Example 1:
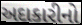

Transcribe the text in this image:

અદાકારીનો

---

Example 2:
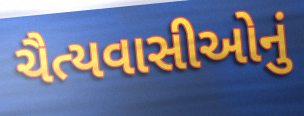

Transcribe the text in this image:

ચૈત્યવાસીઓનું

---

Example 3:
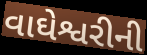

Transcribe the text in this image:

વાઘેશ્વરીની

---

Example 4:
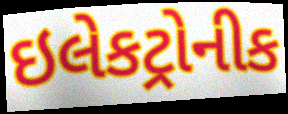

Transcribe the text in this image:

ઇલેકટ્રોનીક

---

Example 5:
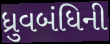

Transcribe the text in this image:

ધ્રુવબંધિની